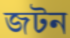
জটন